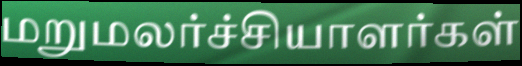
மறுமலர்ச்சியாளர்கள்